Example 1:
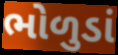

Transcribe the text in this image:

ભોળુડાં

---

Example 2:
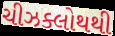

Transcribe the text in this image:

ચીઝક્લોથથી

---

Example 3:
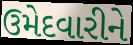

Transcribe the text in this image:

ઉમેદવારીને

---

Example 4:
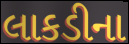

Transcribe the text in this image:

લાકડીના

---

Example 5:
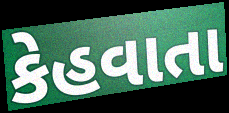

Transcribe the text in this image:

કેહવાતા